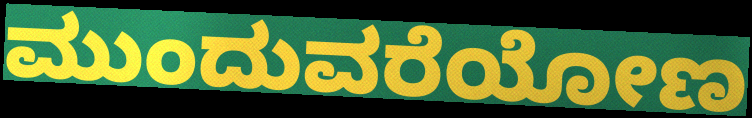
ಮುಂದುವರೆಯೋಣ